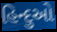
હિન્દુઓ